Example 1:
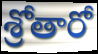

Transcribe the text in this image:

శ్రోతారో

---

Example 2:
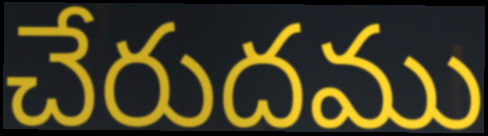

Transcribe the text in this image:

చేరుదము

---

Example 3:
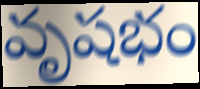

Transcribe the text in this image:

వృషభం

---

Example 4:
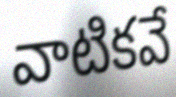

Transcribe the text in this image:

వాటికవే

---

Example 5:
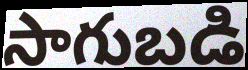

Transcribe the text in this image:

సాగుబడి